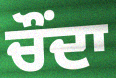
ਚੌਂਦਾ